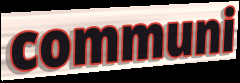
communi